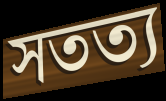
সতত্য